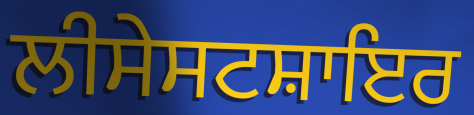
ਲੀਸੇਸਟਸ਼ਾਇਰ